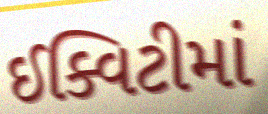
ઈક્વિટીમાં